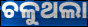
ଚଳୁଥଲା